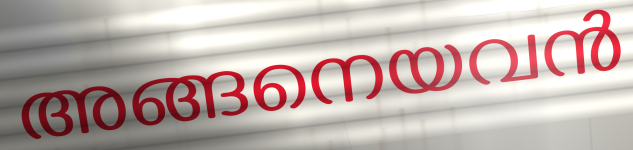
അങ്ങനെയവൻ